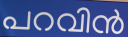
പറവിൻ